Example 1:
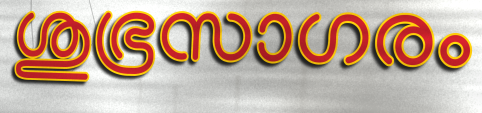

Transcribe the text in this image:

ശുഭ്രസാഗരം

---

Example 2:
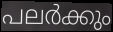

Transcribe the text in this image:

പലർക്കും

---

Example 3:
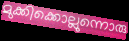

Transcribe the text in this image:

മുക്കിക്കൊല്ലുന്നൊരു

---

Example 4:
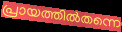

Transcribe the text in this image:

പ്രായത്തിൽതന്നെ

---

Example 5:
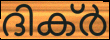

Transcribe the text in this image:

ദിക്ർ